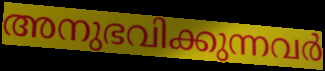
അനുഭവിക്കുന്നവർ